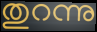
തുറന്നു